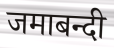
जमाबन्दी